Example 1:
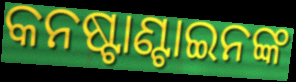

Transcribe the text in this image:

କନଷ୍ଟାଣ୍ଟାଇନଙ୍କ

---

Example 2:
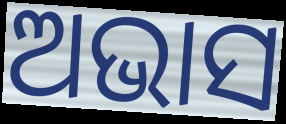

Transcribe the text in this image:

ଅଭାସ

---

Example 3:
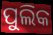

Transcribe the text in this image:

ପୁଲିକ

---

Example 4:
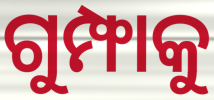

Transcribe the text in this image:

ଗୁମ୍ଫାକୁ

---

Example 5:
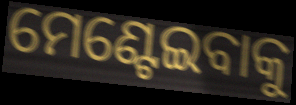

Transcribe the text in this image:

ମେଣ୍ଟେଇବାକୁ